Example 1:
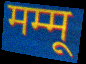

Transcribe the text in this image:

मम्मू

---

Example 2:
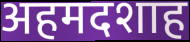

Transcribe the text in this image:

अहमदशाह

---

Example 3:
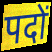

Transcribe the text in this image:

पदों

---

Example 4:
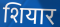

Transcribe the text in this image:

शियार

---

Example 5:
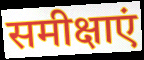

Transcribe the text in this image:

समीक्षाएं